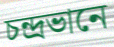
চন্দ্ৰভানে